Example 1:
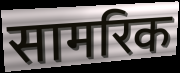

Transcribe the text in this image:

सामरिक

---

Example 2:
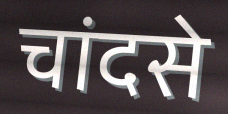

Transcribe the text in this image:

चांदसे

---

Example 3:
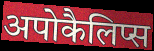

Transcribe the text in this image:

अपोकैलिप्स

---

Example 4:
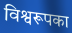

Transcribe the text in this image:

विश्वरूपका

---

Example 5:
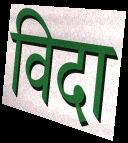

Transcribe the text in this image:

विदा